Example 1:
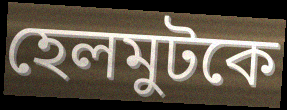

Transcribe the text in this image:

হেলমুটকে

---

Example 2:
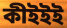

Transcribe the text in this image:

কীইইই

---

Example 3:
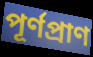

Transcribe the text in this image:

পূর্ণপ্রাণ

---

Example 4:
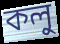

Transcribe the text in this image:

কলু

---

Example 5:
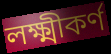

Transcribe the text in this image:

লক্ষ্মীকর্ণ